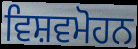
ਵਿਸ਼ਵਮੋਹਨ